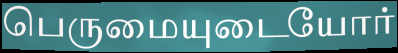
பெருமையுடையோர்